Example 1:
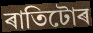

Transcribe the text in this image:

ৰাতিটোৰ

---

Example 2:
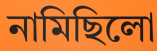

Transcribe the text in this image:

নামিছিলো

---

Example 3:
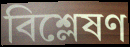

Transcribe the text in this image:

বিশ্লেষণ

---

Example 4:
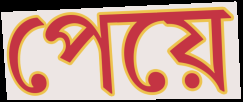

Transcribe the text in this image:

পেয়ে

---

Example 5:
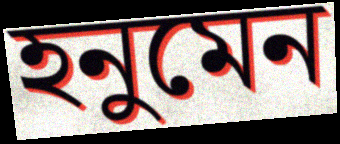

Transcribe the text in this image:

হনুমেন